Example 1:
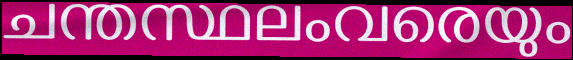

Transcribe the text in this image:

ചന്തസ്ഥലംവരെയും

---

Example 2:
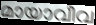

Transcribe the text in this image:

മായാവീവ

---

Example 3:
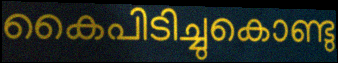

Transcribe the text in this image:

കൈപിടിച്ചുകൊണ്ടു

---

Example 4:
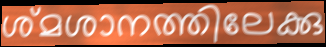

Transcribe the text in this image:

ശ്മശാനത്തിലേക്കു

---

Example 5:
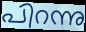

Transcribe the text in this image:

പിറന്നു